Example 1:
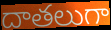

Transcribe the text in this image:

దాతలుగా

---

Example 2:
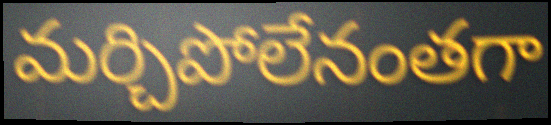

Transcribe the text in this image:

మర్చిపోలేనంతగా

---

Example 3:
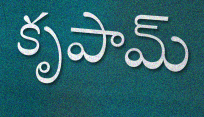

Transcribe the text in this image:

కృపామ్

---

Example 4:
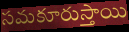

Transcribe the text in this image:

సమకూరుస్తాయి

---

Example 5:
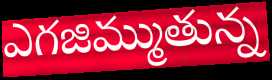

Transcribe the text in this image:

ఎగజిమ్ముతున్న